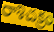
రాశిచక్రం